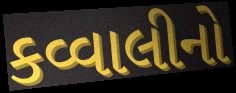
કવ્વાલીનો